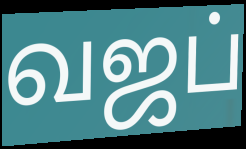
வஜப்